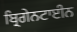
ਬ੍ਰਿਗੇਨਟਾਈਨ